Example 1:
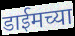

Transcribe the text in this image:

डाईमच्या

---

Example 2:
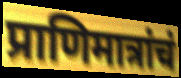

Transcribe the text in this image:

प्राणिमात्रांचं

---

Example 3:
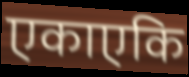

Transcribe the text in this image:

एकाएकि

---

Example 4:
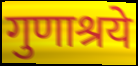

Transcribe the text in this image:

गुणाश्रये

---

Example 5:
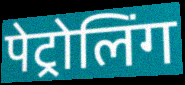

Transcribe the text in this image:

पेट्रोलिंग